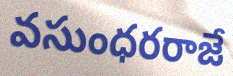
వసుంధరరాజే